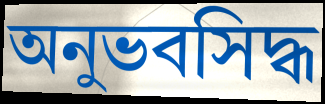
অনুভবসিদ্ধ